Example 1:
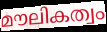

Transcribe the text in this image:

മൗലികത്വം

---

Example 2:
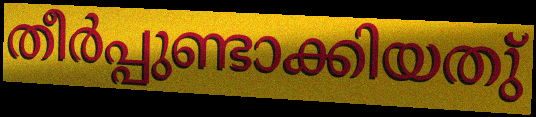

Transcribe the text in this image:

തീർപ്പുണ്ടാക്കിയതു്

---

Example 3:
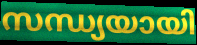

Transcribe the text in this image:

സന്ധ്യയായി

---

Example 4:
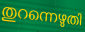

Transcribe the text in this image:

തുറന്നെഴുതി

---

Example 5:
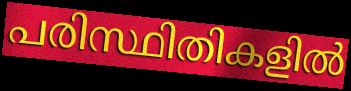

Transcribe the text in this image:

പരിസ്ഥിതികളിൽ